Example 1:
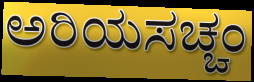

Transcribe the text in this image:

ಅರಿಯಸಚ್ಚಂ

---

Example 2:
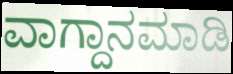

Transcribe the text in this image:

ವಾಗ್ದಾನಮಾಡಿ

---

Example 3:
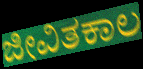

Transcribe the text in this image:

ಜೀವಿತಕಾಲ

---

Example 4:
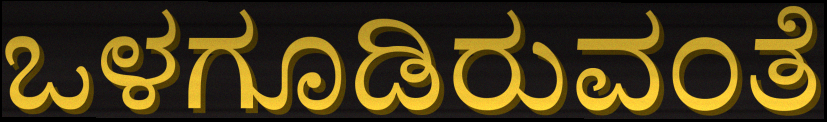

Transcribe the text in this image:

ಒಳಗೂಡಿರುವಂತೆ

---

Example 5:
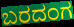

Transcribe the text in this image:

ಬರದಂಗ